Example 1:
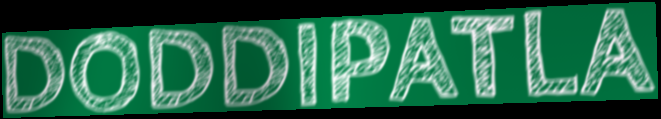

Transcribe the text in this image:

DODDIPATLA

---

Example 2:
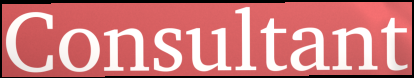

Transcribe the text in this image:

Consultant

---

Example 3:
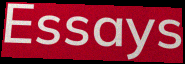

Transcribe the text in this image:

Essays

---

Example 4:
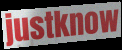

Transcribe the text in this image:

justknow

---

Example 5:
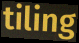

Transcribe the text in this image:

tiling